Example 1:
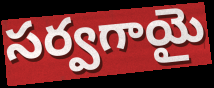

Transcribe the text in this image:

సర్వగాయై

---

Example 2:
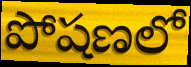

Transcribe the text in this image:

పోషణలో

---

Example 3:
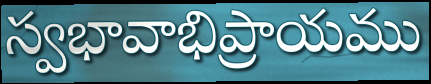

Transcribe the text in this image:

స్వభావాభిప్రాయము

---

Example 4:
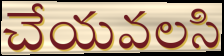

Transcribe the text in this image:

చేయవలసి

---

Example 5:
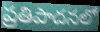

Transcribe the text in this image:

ప్రతిపాదనలో